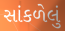
સાંકળેલું